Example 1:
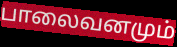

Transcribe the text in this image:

பாலைவனமும்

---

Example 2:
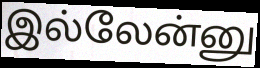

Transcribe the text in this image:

இல்லேன்னு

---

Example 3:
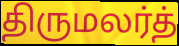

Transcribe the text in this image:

திருமலர்த்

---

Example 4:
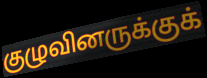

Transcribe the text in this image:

குழுவினருக்குக்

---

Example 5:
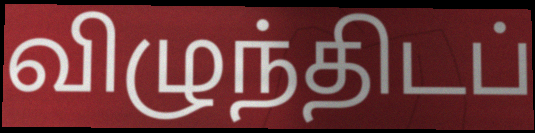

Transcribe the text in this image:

விழுந்திடப்